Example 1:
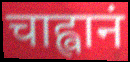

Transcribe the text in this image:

चाह्वानं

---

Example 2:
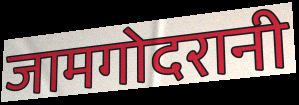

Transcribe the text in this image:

जामगोदरानी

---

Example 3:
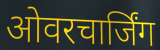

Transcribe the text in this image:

ओवरचार्जिंग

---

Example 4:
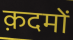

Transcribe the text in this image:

क़दमों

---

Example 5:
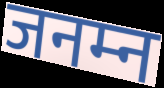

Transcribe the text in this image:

जनम्न